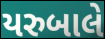
યરુબાલે